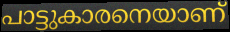
പാട്ടുകാരനെയാണ്